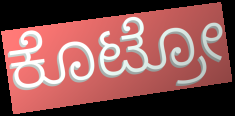
ಕೊಟ್ರೋ